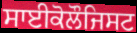
ਸਾਈਕੋਲੌਜਿਸਟ